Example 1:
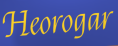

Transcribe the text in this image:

Heorogar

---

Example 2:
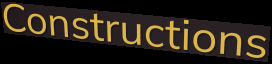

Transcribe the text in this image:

Constructions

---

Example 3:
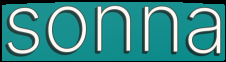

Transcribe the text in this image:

sonna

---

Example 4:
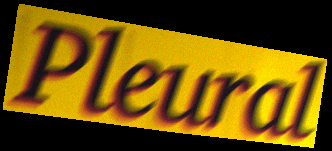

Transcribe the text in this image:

Pleural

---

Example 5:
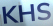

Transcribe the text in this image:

KHS